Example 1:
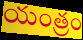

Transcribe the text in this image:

యంత్రం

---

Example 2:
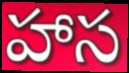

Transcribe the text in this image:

హాస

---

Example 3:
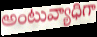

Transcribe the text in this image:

అంటువ్యాధిగా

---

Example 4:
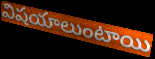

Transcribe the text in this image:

విషయాలుంటాయి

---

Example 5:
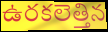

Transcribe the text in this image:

ఉరకలెత్తిన